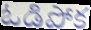
ఓడిపోక